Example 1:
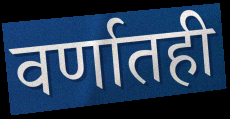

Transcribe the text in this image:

वर्णातही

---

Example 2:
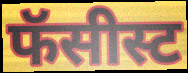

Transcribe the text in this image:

फॅसीस्ट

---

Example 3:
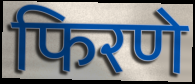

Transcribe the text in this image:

फिरणे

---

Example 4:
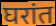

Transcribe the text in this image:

घरांत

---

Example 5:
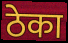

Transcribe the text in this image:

ठेका